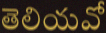
తెలియవో